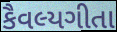
કૈવલ્યગીતા